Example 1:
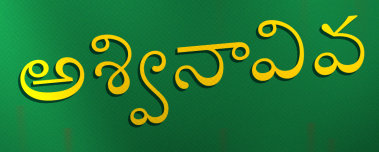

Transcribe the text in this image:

అశ్వినావివ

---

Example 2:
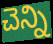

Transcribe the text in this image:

చెన్ని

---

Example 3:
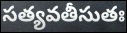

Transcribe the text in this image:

సత్యవతీసుతః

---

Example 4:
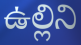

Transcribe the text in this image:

ఉల్లిని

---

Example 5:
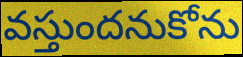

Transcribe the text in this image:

వస్తుందనుకోను